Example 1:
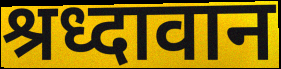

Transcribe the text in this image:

श्रध्दावान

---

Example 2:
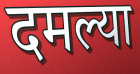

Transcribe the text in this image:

दमल्या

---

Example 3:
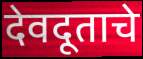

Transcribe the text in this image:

देवदूताचे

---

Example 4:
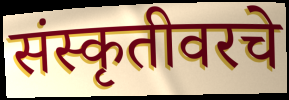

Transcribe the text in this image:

संस्कृतीवरचे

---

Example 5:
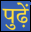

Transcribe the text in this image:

पुढ़ें